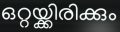
ഒറ്റയ്ക്കിരിക്കും